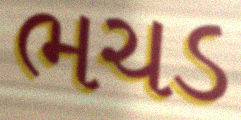
ભચડ